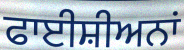
ਫਾਈਸ਼ੀਅਨਾਂ